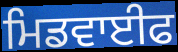
ਮਿਡਵਾਈਫ